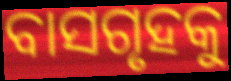
ବାସଗୃହକୁ